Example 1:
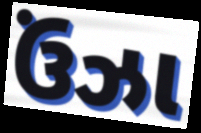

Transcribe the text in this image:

ઉંઝા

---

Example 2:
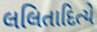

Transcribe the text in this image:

લલિતાદિત્યે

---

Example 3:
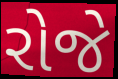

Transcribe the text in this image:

રોજે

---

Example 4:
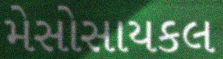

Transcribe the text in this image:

મેસોસાયકલ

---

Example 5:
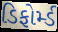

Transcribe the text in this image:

ડિફોર્મ્ડ